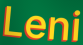
Leni